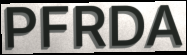
PFRDA